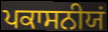
ਪਕਾਸਨੀਯਂ